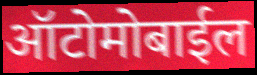
ऑटोमोबाईल